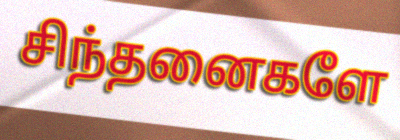
சிந்தனைகளே